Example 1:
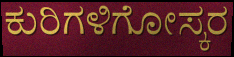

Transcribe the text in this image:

ಕುರಿಗಳಿಗೋಸ್ಕರ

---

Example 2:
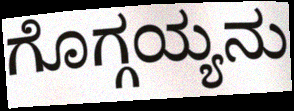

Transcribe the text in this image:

ಗೊಗ್ಗಯ್ಯನು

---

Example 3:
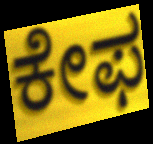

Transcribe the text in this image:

ಕೇಫ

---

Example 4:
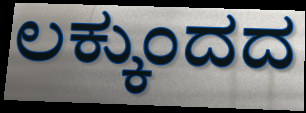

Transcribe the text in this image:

ಲಕ್ಕುಂದದ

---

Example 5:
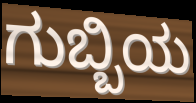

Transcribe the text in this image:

ಗುಬ್ಬಿಯ